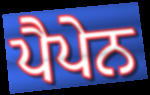
ਪੈਪੇਨ